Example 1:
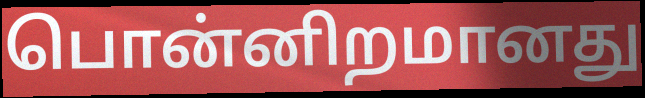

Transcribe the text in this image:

பொன்னிறமானது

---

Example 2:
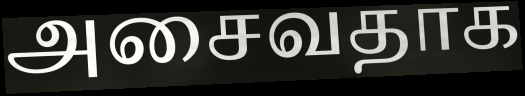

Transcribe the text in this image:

அசைவதாக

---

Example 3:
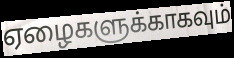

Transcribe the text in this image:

ஏழைகளுக்காகவும்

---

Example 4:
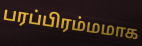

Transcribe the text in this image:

பரப்பிரம்மமாக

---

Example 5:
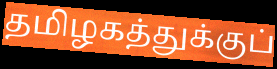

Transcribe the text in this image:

தமிழகத்துக்குப்